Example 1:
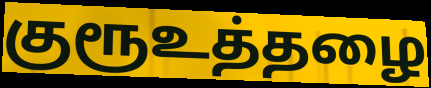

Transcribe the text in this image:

குரூஉத்தழை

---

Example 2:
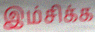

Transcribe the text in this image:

இம்சிக்க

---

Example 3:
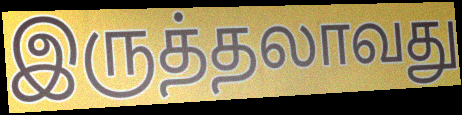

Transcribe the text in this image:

இருத்தலாவது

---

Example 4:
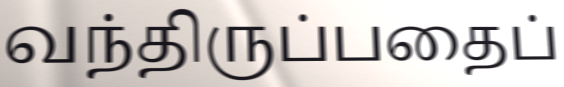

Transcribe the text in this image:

வந்திருப்பதைப்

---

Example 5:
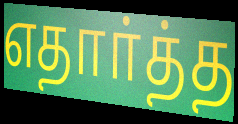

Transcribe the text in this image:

எதார்த்த